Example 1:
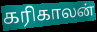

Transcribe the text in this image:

கரிகாலன்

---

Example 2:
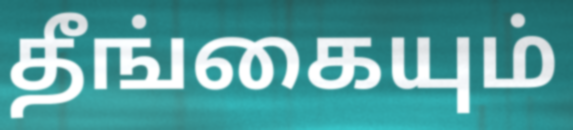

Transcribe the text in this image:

தீங்கையும்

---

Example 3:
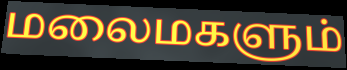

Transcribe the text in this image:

மலைமகளும்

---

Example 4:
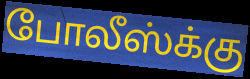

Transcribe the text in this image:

போலீஸ்க்கு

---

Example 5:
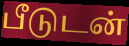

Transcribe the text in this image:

பீடுடன்